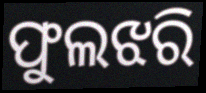
ଫୁଲଝରି